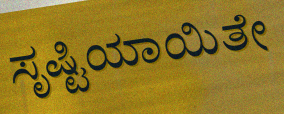
ಸೃಷ್ಟಿಯಾಯಿತೇ